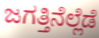
ಜಗತ್ತಿನೆಲ್ಲೆಡೆ